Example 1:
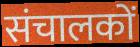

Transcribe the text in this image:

संचालकों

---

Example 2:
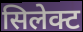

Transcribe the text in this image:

सिलेक्ट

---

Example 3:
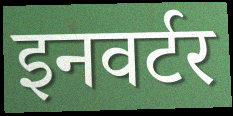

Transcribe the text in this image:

इनवर्टर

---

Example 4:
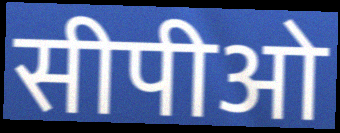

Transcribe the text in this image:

सीपीओ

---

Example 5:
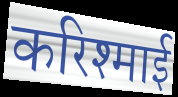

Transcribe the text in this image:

करिश्माई